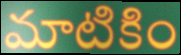
మాటికిం